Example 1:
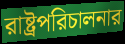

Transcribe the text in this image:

রাষ্ট্রপরিচালনার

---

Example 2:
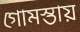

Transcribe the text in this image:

গোমস্তায়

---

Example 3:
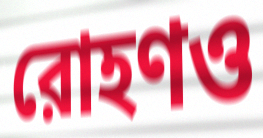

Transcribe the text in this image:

রোহণও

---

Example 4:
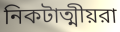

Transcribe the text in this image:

নিকটাত্মীয়রা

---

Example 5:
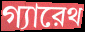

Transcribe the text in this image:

গ্যারেথ